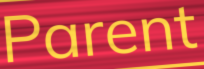
Parent